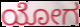
ಯೋಗ